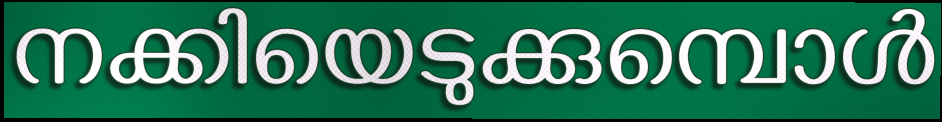
നക്കിയെടുക്കുമ്പൊൾ